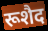
रूशैद